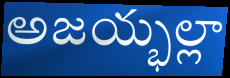
అజయ్భల్లా